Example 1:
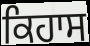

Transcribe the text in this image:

ਕਿਹਾਸ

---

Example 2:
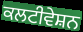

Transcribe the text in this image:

ਕਲਟੀਵੇਸ਼ਨ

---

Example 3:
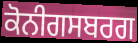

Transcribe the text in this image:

ਕੋਨੀਗਸਬਰਗ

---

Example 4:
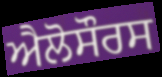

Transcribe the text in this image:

ਐਲੋਸੌਰਸ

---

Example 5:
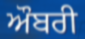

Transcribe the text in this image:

ਔਬਰੀ